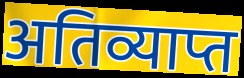
अतिव्याप्त